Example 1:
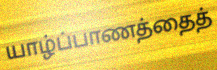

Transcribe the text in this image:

யாழ்ப்பாணத்தைத்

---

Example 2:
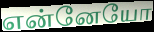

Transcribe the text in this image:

என்னேயோ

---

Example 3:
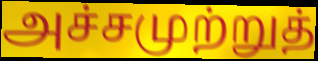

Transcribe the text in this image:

அச்சமுற்றுத்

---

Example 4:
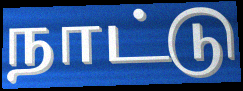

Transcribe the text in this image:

நாட்டு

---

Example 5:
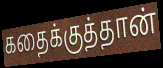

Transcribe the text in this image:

கதைக்குத்தான்